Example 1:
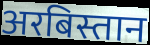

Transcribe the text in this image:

अरबिस्तान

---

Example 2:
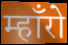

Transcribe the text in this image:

म्हाँरो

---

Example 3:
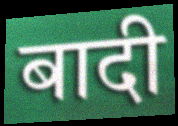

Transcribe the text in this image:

बादी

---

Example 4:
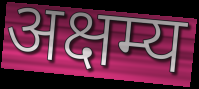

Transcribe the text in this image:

अक्षम्य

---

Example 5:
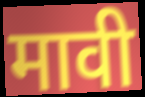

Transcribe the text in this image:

मावी